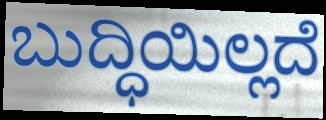
ಬುದ್ಧಿಯಿಲ್ಲದೆ